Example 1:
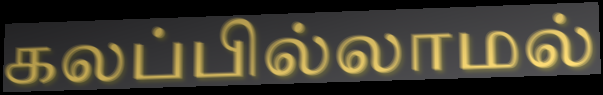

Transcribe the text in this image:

கலப்பில்லாமல்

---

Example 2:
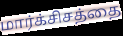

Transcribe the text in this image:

மார்க்சிசத்தை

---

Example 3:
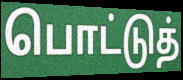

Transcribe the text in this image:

பொட்டுத்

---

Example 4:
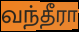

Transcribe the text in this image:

வந்தீரா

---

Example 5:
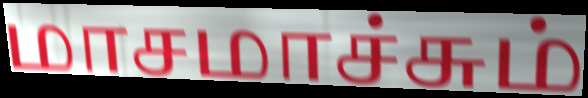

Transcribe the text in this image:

மாசமாச்சும்